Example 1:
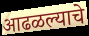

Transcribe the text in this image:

आढळल्याचे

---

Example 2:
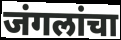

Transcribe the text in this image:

जंगलांचा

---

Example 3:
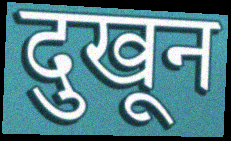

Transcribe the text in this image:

दुखून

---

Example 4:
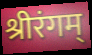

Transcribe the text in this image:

श्रीरंगम्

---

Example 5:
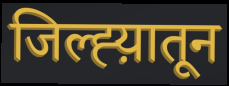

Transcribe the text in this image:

जिल्ह्य़ातून